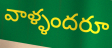
వాళ్ళందరూ